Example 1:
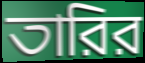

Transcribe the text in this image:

তারির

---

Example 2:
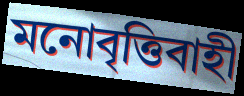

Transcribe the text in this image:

মনোবৃত্তিবাহী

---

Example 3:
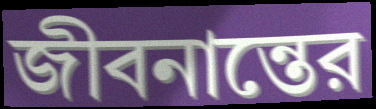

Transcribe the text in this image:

জীবনান্তের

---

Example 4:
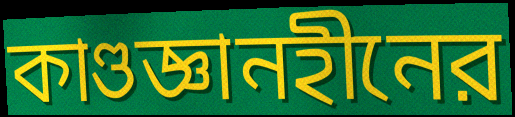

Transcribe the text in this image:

কাণ্ডজ্ঞানহীনের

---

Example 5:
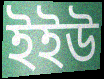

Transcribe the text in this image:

ইইউ